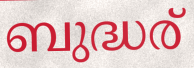
ബുദ്ധര്